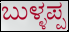
ಬುಳ್ಳಪ್ಪ